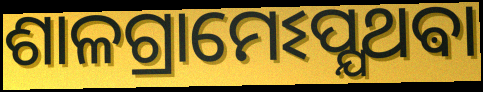
ଶାଳଗ୍ରାମେଽପ୍ଯଥଵା